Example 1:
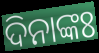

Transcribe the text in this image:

ଦିନାଙ୍କଃ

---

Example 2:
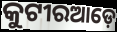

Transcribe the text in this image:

କୁଟୀରଆଡ଼େ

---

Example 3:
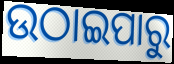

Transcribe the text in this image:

ଉଠାଇପାରୁ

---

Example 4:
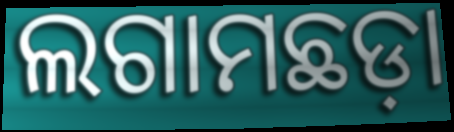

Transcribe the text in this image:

ଲଗାମଛଡ଼ା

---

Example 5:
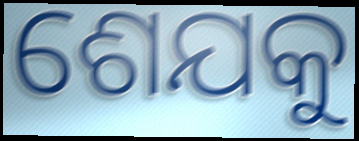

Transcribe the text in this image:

ଶେଯକୁ